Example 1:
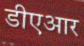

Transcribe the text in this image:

डीएआर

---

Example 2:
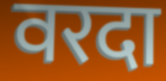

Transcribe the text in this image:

वरदा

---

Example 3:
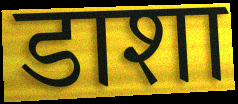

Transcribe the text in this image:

डाशा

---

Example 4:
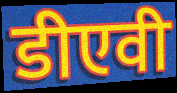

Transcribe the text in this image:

डीएवी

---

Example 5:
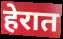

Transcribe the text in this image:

हेरात